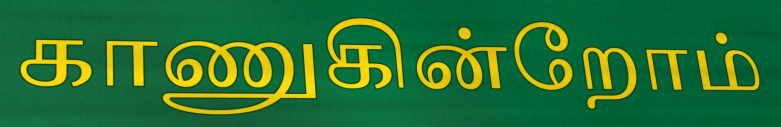
காணுகின்றோம்